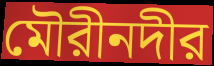
মৌরীনদীর